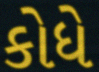
કોધે